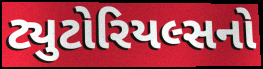
ટ્યુટોરિયલ્સનો